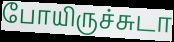
போயிருச்சுடா